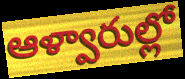
ఆళ్వారుల్లో